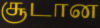
சூடான